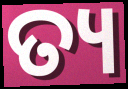
ତ୍ୟ